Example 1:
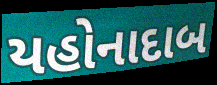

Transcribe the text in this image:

યહોનાદાબ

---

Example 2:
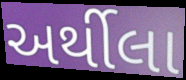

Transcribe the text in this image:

અર્થીલા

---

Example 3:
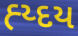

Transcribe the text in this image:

હ્ય્દય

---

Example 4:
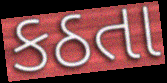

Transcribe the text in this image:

કઠતા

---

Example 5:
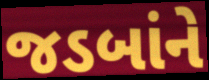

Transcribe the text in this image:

જડબાંને